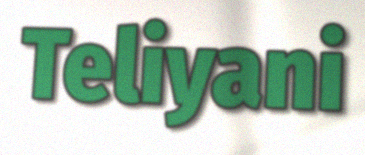
Teliyani